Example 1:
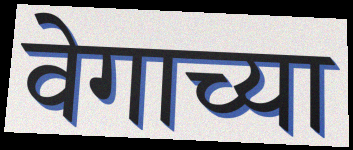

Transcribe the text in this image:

वेगाच्या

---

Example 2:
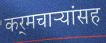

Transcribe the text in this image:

कर्मचाऱ्यांसह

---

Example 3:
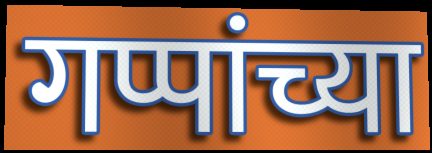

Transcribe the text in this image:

गप्पांच्या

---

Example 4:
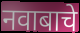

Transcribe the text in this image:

नवाबाचे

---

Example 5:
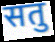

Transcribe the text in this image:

सतु